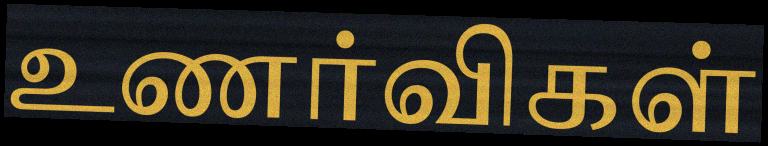
உணர்விகள்